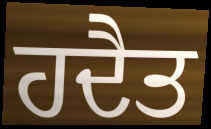
ਹਦੈਤ